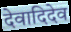
देवादिदेव